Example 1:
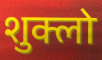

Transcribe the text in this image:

शुक्लो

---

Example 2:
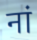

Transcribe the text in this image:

नां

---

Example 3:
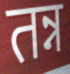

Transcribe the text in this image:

तन्न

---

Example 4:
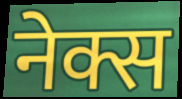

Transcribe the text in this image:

नेक्स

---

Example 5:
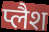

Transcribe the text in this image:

प्लैश